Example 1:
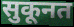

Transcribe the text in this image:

सुकूनत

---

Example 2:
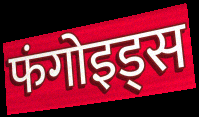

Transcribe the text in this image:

फंगोइड्स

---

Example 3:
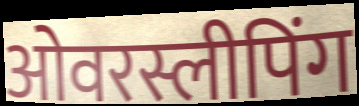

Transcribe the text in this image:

ओवरस्लीपिंग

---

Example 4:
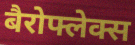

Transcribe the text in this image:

बैरोफ्लेक्स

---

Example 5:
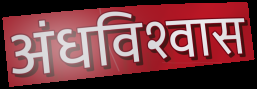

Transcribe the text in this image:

अंधविश्वास